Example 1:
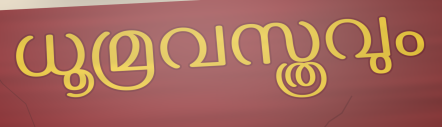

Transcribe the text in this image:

ധൂമ്രവസ്ത്രവും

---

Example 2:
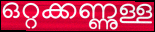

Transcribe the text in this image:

ഒറ്റക്കണ്ണുള്ള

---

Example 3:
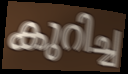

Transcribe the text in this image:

കുറിച്ച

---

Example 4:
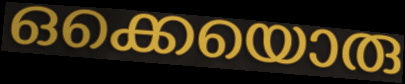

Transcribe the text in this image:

ഒക്കെയൊരു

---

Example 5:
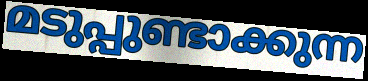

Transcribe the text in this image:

മടുപ്പുണ്ടാക്കുന്ന